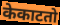
केकाटतो